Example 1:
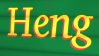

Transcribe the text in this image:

Heng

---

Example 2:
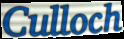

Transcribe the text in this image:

Culloch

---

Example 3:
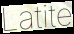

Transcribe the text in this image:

Latite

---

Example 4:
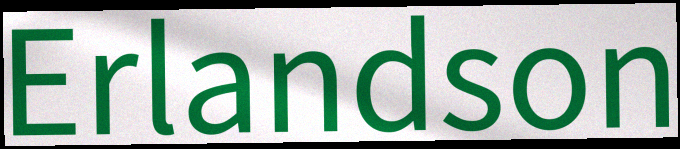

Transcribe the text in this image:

Erlandson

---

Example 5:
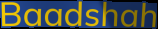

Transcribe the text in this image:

Baadshah